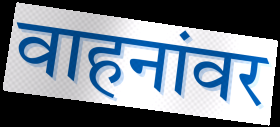
वाहनांवर